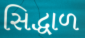
સિદ્ધાળ